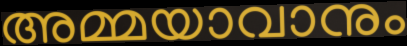
അമ്മയാവാനും